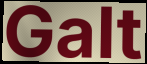
Galt